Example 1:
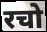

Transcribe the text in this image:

रचो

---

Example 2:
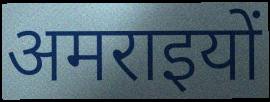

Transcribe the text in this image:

अमराइयों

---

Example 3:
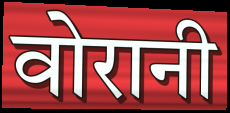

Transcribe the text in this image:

वोरानी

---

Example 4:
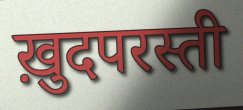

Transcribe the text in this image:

ख़ुदपरस्ती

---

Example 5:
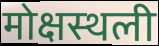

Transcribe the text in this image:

मोक्षस्थली